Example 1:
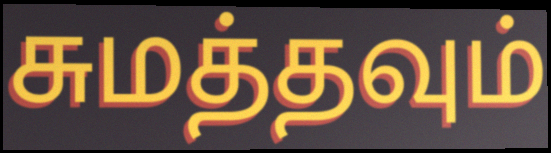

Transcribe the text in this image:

சுமத்தவும்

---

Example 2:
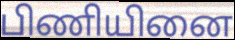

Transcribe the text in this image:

பிணியினை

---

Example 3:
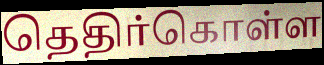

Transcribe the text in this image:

தெதிர்கொள்ள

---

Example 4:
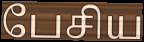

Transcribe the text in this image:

பேசிய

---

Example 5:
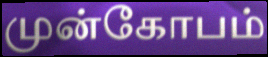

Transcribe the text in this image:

முன்கோபம்